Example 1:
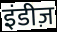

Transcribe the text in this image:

इंडीज़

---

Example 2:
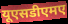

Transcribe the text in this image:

यूएसडीएमए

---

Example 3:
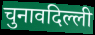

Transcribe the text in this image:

चुनावदिल्ली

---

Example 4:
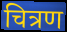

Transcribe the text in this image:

चित्रण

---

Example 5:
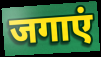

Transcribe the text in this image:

जगाएं